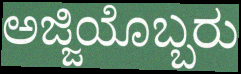
ಅಜ್ಜಿಯೊಬ್ಬರು